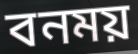
বনময়